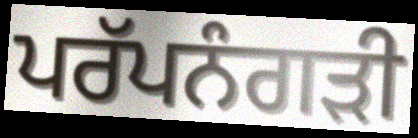
ਪਰੱਪਨੰਗੜੀ